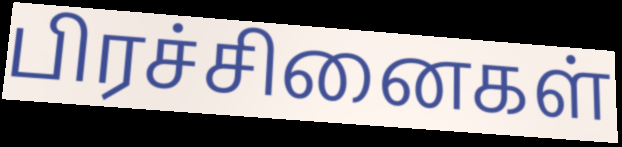
பிரச்சினைகள்